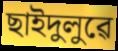
ছাইদুলুৱে